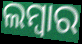
ଲମ୍ୱାର